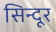
सिन्दूर